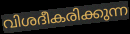
വിശദീകരിക്കുന്ന